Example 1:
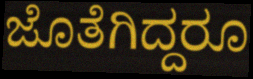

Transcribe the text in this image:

ಜೊತೆಗಿದ್ದರೂ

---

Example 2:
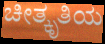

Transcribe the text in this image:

ಚೀತ್ಕೃತಿಯ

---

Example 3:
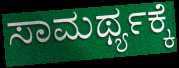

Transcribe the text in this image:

ಸಾಮರ್ಥ್ಯಕ್ಕೆ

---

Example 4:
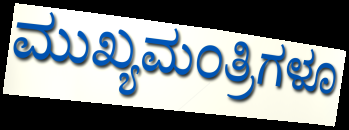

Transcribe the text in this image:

ಮುಖ್ಯಮಂತ್ರಿಗಳೂ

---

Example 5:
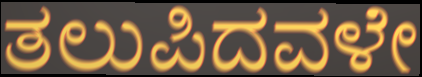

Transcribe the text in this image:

ತಲುಪಿದವಳೇ